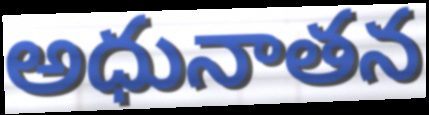
అధునాతన